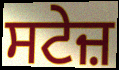
ਸਟੇਜ਼